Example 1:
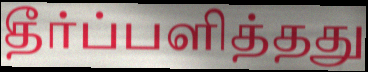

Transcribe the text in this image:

தீர்ப்பளித்தது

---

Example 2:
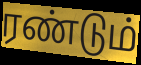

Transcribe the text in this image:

ரண்டும்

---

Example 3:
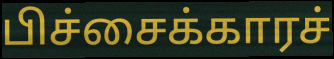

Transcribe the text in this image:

பிச்சைக்காரச்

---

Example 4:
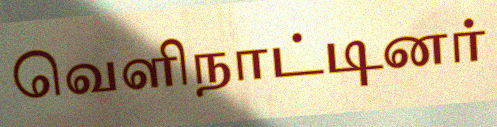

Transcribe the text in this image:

வெளிநாட்டினர்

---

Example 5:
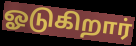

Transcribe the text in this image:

ஓடுகிறார்